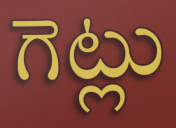
గెట్లు